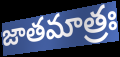
జాతమాత్రః